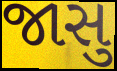
જાસુ